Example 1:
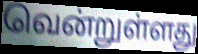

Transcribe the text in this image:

வென்றுள்ளது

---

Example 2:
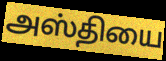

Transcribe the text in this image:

அஸ்தியை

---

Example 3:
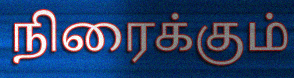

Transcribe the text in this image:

நிரைக்கும்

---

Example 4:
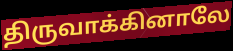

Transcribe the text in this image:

திருவாக்கினாலே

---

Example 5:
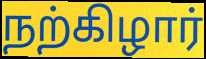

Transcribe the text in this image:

நற்கிழார்